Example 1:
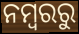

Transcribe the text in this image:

ନମ୍ୱରରୁ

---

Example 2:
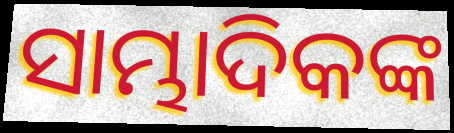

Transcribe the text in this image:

ସାମ୍ଭାଦିକଙ୍କ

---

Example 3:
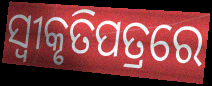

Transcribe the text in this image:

ସ୍ୱୀକୃତିପତ୍ରରେ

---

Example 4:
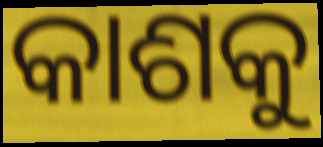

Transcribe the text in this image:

କାଶକୁ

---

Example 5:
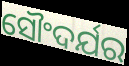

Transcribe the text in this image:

ସୌଂଦର୍ଯର